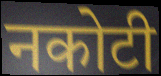
नकोटी